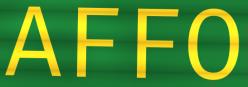
AFFO